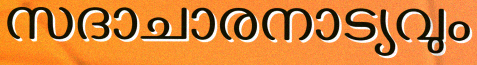
സദാചാരനാട്യവും